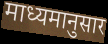
माध्यमानुसार